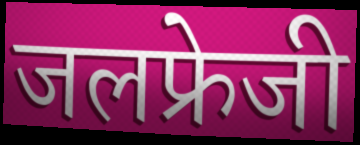
जलफ्रेजी